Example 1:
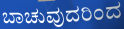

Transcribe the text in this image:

ಬಾಚುವುದರಿಂದ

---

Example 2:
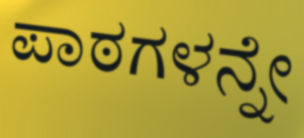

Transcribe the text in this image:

ಪಾಠಗಳನ್ನೇ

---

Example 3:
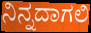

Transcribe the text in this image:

ನಿನ್ನದಾಗಲಿ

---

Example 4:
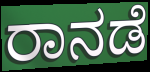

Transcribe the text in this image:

ರಾನಡೆ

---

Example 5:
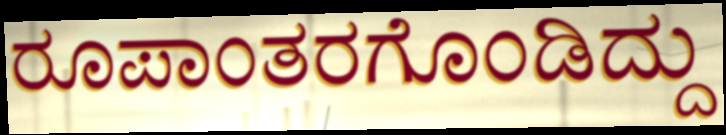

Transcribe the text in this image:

ರೂಪಾಂತರಗೊಂಡಿದ್ದು